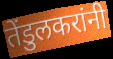
तेंडुलकरांनी